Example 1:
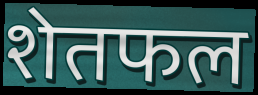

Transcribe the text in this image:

शेतफल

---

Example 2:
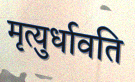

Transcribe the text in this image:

मृत्युर्धावति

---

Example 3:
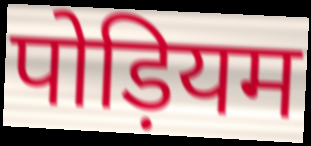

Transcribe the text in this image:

पोड़ियम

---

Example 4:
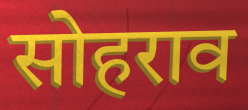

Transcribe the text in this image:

सोहराव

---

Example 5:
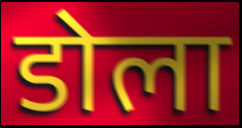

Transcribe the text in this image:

डोला